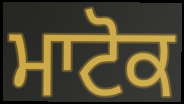
ਮਾਟੋਕ